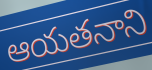
ఆయతనాని